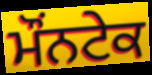
ਮੌਂਨਟੇਕ